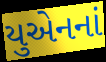
યુએનનાં